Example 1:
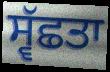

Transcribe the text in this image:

ਸ੍ਵੱਛਤਾ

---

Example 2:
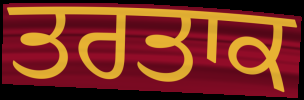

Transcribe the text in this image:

ਤਰਤਾਕ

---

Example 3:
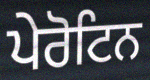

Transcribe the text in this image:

ਪੇਰੋਟਿਨ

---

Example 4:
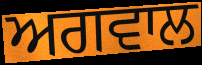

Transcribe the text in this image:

ਅਗਵਾਲ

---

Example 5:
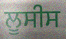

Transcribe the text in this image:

ਲੂਸੀਸ